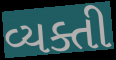
વ્યક્તી